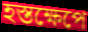
হস্তক্ষেপে